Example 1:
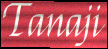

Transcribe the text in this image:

Tanaji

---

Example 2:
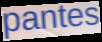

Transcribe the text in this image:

pantes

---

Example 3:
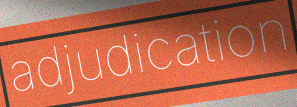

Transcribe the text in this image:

adjudication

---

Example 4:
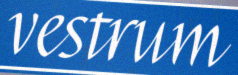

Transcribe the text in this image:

vestrum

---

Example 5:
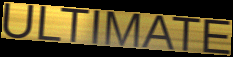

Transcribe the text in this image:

ULTIMATE